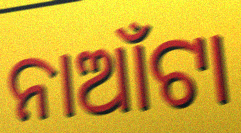
ନାଆଁଟା